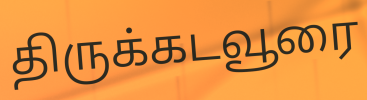
திருக்கடவூரை